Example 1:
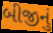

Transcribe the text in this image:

બીજીનું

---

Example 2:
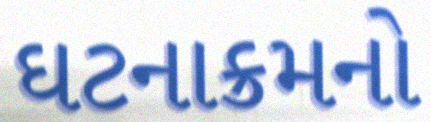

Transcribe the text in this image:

ઘટનાક્રમનો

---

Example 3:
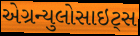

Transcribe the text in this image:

એગ્રન્યુલોસાઇટ્સ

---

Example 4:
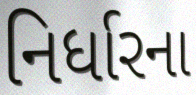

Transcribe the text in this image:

નિર્ધારના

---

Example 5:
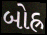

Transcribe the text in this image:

બોહ્ર